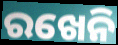
ରଖେନି